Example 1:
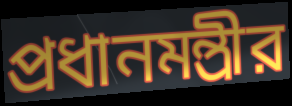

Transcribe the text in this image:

প্রধানমন্ত্রীর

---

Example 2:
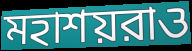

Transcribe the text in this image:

মহাশয়রাও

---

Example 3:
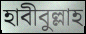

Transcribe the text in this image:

হাবীবুল্লাহ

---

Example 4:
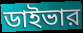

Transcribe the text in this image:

ডাইভার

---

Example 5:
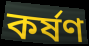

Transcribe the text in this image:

কর্ষণ